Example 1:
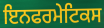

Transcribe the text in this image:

ਇਨਫਰਮੇਟਿਕਸ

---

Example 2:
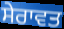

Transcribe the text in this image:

ਸੇਰਾਵਤ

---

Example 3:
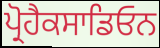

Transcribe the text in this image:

ਪ੍ਰੋਹੈਕਸਾਡਿਓਨ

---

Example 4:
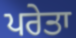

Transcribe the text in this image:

ਪਰੇਤਾ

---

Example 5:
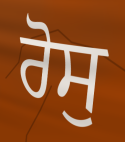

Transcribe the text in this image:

ਰੋਸੁ